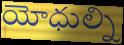
యోధుల్ని